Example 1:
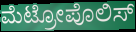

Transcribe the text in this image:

ಮೆಟ್ರೋಪೊಲಿಸ್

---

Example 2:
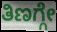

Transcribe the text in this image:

ತಿಣಗ್ಗೇ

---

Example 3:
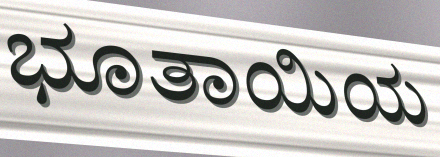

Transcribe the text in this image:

ಭೂತಾಯಿಯ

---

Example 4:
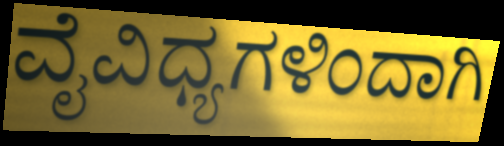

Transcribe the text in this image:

ವೈವಿಧ್ಯಗಳಿಂದಾಗಿ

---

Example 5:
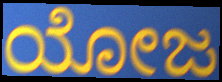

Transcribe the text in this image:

ಯೋಜ